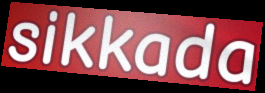
sikkada